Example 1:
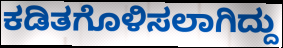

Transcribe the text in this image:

ಕಡಿತಗೊಳಿಸಲಾಗಿದ್ದು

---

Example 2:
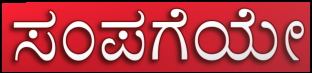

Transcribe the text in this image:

ಸಂಪಗೆಯೇ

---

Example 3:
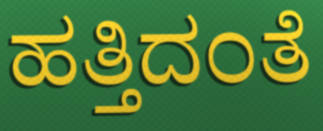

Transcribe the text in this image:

ಹತ್ತಿದಂತೆ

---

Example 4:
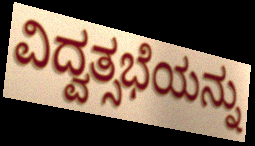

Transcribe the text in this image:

ವಿದ್ವತ್ಸಭೆಯನ್ನು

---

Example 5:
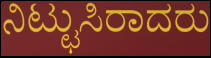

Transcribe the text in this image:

ನಿಟ್ಟುಸಿರಾದರು